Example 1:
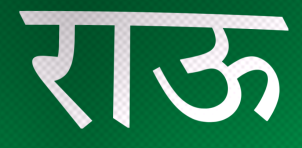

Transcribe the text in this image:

राऊ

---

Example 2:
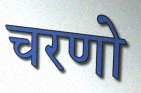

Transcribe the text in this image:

चरणो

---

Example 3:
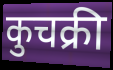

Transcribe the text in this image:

कुचक्री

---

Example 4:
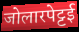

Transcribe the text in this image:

जोलारपेट्टई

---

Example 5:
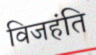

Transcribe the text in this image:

विजहंति